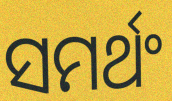
ସମର୍ଥଂ